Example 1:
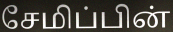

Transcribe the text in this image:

சேமிப்பின்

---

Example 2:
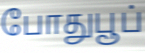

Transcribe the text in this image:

போதுபூப்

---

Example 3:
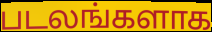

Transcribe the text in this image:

படலங்களாக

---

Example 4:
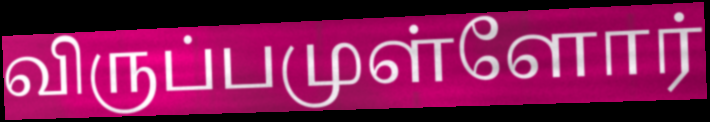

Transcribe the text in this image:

விருப்பமுள்ளோர்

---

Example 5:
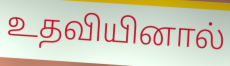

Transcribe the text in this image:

உதவியினால்